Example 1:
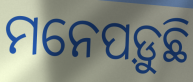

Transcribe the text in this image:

ମନେପଡ଼ୁଛି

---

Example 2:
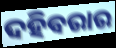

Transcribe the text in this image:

ଦହିବରାର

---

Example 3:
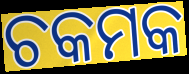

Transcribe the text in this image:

ଚକମକ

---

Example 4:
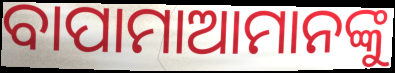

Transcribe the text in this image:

ବାପାମାଆମାନଙ୍କୁ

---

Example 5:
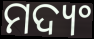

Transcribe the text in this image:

ମଦ୍ୟଂ